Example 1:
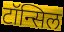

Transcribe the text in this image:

टॉन्सिल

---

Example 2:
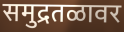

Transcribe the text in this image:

समुद्रतळावर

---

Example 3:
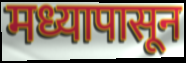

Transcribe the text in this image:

मध्यापासून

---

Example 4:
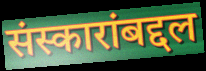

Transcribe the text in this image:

संस्कारांबद्दल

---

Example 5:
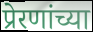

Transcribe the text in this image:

प्रेरणांच्या